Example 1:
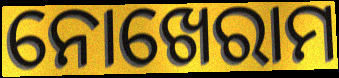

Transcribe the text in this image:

ନୋଖେରାମ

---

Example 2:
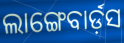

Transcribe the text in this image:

ଲାଙ୍ଗେବାର୍ଡ଼ସ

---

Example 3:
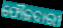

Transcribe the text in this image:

ଫୌଜଦାରୀ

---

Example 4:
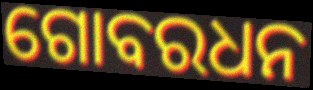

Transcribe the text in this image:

ଗୋବରଧନ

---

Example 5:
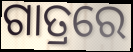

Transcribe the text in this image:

ଗାତ୍ରରେ